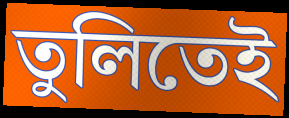
তুলিতেই